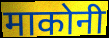
माकोनी